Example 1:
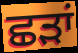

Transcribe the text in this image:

ਛੜਾਂ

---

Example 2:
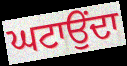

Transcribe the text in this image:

ਘਟਾਉੁਂਦਾ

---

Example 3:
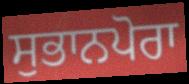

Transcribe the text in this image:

ਸੁਭਾਨਪੋਰਾ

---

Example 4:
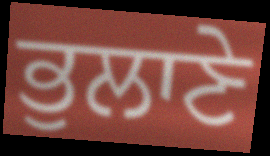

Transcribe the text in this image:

ਭੁਲਾਣੇ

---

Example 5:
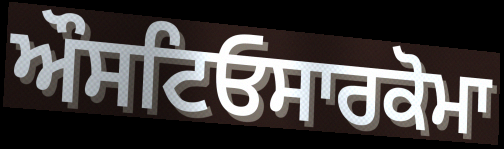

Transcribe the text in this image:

ਔਸਟਿਓਸਾਰਕੋਮਾ